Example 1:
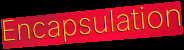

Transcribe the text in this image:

Encapsulation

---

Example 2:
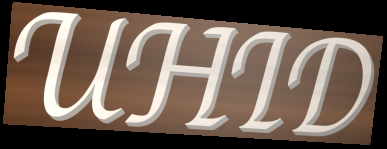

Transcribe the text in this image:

UHID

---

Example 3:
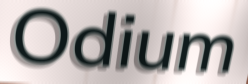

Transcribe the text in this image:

Odium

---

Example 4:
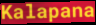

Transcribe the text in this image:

Kalapana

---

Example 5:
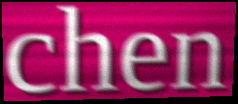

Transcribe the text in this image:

chen